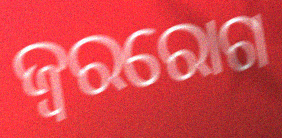
ଜ୍ୱରରୋଗ